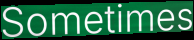
Sometimes